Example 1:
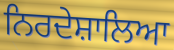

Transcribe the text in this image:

ਨਿਰਦੇਸ਼ਾਲਿਆ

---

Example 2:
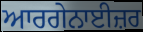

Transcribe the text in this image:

ਆਰਗੇਨਾਈਜ਼ਰ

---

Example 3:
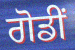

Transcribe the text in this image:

ਗੋਡੀਂ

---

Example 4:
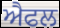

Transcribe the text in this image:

ਐਫਲ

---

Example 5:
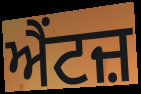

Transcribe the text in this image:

ਐਂਟਜ਼